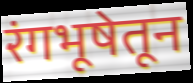
रंगभूषेतून